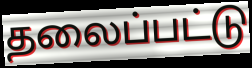
தலைப்பட்டு